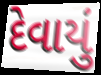
દેવાયું